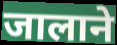
जालाने